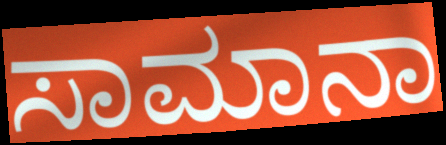
ಸಾಮಾನಾ